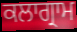
ਕਲਾਗ੍ਰਾਮ